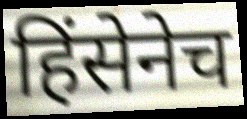
हिंसेनेच